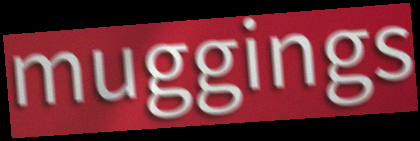
muggings